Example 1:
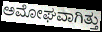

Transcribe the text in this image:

ಅಮೋಘವಾಗಿತ್ತು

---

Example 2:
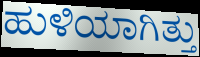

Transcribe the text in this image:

ಹುಳಿಯಾಗಿತ್ತು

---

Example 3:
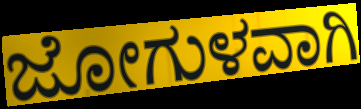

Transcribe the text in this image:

ಜೋಗುಳವಾಗಿ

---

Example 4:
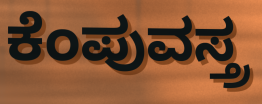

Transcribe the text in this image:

ಕೆಂಪುವಸ್ತ್ರ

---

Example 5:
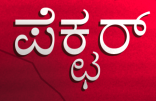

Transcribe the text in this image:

ಪೆಕ್ಟರ್